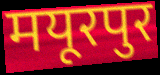
मयूरपुर